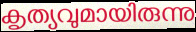
കൃത്യവുമായിരുന്നു